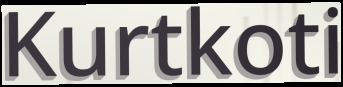
Kurtkoti